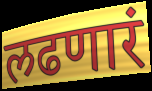
लढणारं